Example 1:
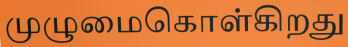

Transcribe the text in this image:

முழுமைகொள்கிறது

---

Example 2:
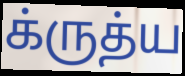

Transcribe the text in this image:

க்ருத்ய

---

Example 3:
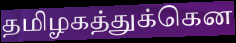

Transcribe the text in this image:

தமிழகத்துக்கென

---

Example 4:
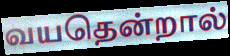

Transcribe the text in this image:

வயதென்றால்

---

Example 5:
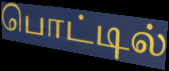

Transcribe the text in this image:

பொட்டில்